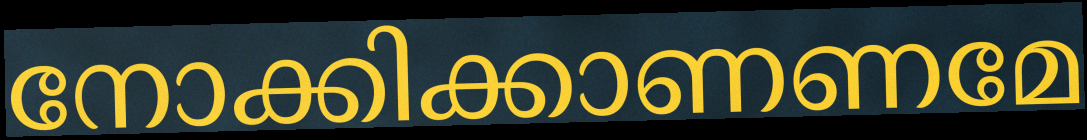
നോക്കിക്കാണണമേ